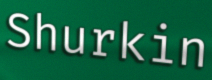
Shurkin